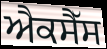
ਐਕਸੈੱਸ